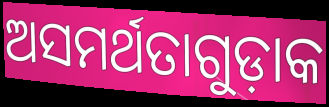
ଅସମର୍ଥତାଗୁଡ଼ାକ